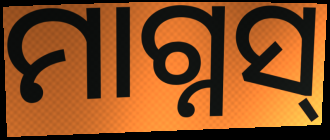
ମାଗ୍ନସ୍